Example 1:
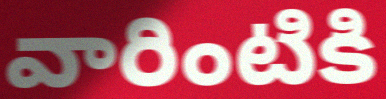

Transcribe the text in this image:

వారింటికి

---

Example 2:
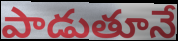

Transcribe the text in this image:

పాడుతూనే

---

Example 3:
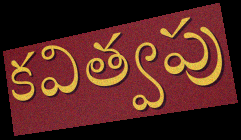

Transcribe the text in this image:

కవిత్వపు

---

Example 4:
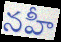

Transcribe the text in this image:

నహీ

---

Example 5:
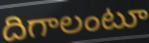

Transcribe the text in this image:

దిగాలంటూ